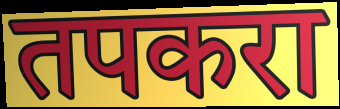
तपकरा